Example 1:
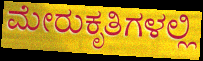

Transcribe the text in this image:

ಮೇರುಕೃತಿಗಳಲ್ಲಿ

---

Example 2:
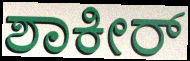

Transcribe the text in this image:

ಶಾಕೀರ್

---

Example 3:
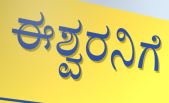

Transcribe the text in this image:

ಈಶ್ವರನಿಗೆ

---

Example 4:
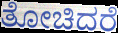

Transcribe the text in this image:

ತೋಚಿದರೆ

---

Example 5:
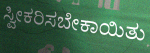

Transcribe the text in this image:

ಸ್ವೀಕರಿಸಬೇಕಾಯಿತು